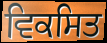
ਵਿਕਸਿਤ